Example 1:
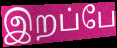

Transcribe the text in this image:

இறப்பே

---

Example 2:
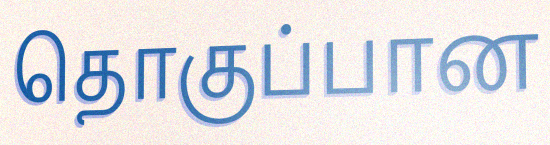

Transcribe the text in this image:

தொகுப்பான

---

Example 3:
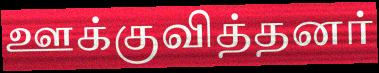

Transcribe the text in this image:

ஊக்குவித்தனர்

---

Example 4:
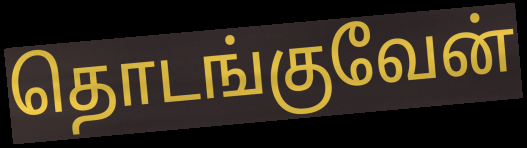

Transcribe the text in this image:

தொடங்குவேன்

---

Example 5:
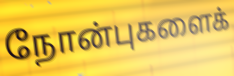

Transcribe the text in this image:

நோன்புகளைக்